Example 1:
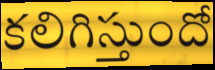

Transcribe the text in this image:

కలిగిస్తుందో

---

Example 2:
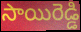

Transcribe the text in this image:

సాయిరెడ్డి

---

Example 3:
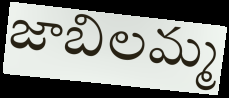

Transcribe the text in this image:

జాబిలమ్మ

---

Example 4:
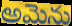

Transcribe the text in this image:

అమెను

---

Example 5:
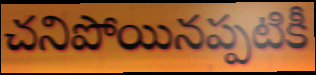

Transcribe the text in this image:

చనిపోయినప్పటికీ